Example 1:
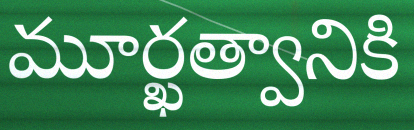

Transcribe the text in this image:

మూర్ఖత్వానికి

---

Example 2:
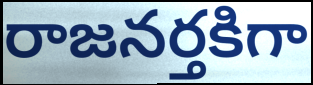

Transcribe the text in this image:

రాజనర్తకిగా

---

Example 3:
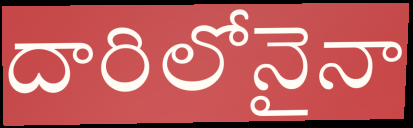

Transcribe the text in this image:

దారిలోనైనా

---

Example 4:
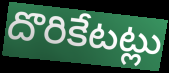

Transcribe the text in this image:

దొరికేటట్లు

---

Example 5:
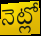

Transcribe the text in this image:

నెట్లో